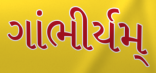
ગાંભીર્યમ્